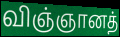
விஞ்ஞானத்